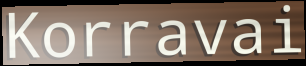
Korravai